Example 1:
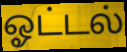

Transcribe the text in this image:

ஓட்டல்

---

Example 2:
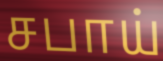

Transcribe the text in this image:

சபாய்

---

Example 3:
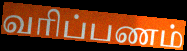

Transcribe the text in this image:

வரிப்பணம்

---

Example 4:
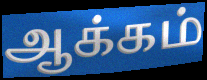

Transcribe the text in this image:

ஆக்கம்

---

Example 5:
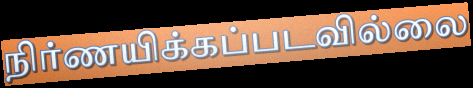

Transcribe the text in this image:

நிர்ணயிக்கப்படவில்லை